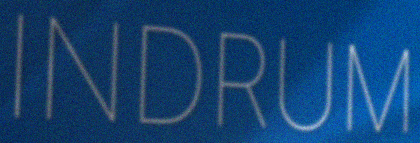
INDRUM